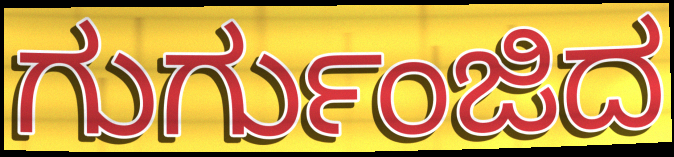
ಗುರ್ಗುಂಜಿದ